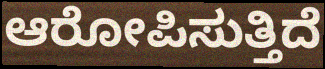
ಆರೋಪಿಸುತ್ತಿದೆ